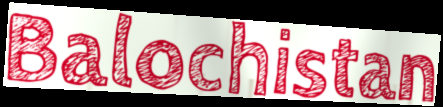
Balochistan